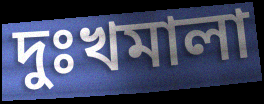
দুঃখমালা